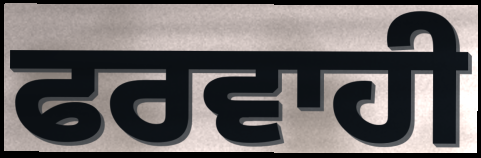
ਫਰਵਾਹੀ